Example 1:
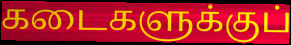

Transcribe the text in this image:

கடைகளுக்குப்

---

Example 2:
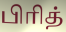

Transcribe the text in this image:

பிரித்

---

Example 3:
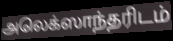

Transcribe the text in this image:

அலெக்ஸாந்தரிடம்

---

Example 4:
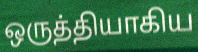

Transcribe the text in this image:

ஒருத்தியாகிய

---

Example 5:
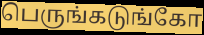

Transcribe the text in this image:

பெருங்கடுங்கோ